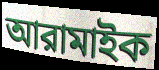
আরামাইক